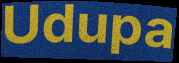
Udupa